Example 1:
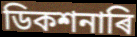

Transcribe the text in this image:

ডিকশনাৰি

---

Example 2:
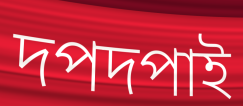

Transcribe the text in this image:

দপদপাই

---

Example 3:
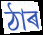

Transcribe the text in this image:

ঠাৰ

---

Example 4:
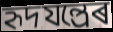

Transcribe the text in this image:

হৃদযন্ত্ৰেৰ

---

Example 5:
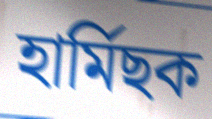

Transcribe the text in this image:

হাৰ্মিছক